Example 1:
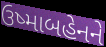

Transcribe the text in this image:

ઉષ્માબહેનને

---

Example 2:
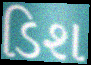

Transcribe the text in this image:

ડિશ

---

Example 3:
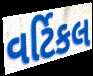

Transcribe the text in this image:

વર્ટિકલ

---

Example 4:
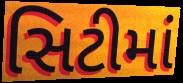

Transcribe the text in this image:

સિટીમાં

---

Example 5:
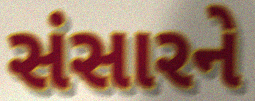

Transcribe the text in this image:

સંસારને